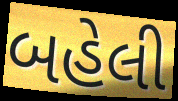
બહેલી